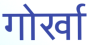
गोर्खा